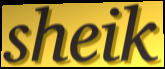
sheik